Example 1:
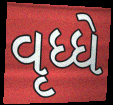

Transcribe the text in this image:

વૃધ્ધે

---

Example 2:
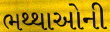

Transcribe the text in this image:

ભથ્થાઓની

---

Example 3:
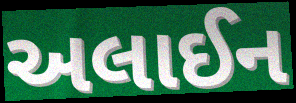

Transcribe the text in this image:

અલાઈન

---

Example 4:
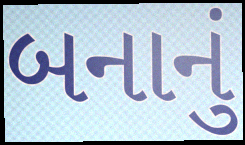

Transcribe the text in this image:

બનાનું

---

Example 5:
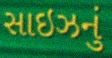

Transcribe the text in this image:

સાઇઝનું